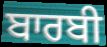
ਬਾਰਬੀ